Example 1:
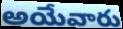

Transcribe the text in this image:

అయేవారు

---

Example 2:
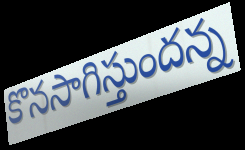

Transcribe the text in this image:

కొనసాగిస్తుందన్న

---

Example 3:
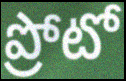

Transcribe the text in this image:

ప్రోటో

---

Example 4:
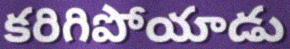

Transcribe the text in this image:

కరిగిపోయాడు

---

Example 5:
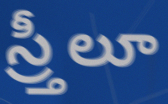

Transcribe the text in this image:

స్ర్తీలూ